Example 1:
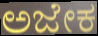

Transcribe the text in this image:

ಅಜೇಕ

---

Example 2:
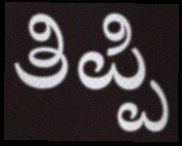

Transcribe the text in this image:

ತಿಪ್ಪಿ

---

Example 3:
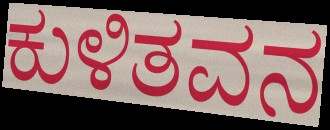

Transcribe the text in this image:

ಕುಳಿತವನ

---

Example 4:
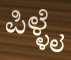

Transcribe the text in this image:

ಪಿಳ್ಳೈ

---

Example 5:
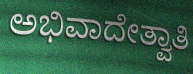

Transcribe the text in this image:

ಅಭಿವಾದೇತ್ವಾತಿ